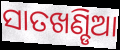
ସାତଖଣ୍ଡିଆ